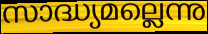
സാദ്ധ്യമല്ലെന്നു